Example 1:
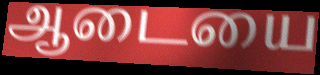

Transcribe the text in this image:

ஆடையை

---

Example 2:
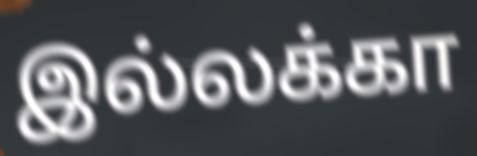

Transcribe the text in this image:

இல்லக்கா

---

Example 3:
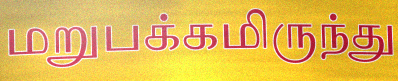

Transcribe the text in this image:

மறுபக்கமிருந்து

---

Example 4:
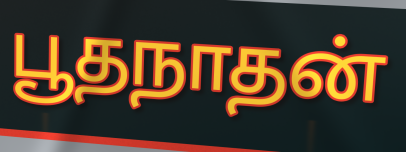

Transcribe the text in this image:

பூதநாதன்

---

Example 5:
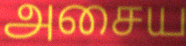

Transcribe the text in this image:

அசைய